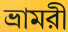
ভ্রামরী